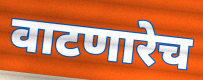
वाटणारेच